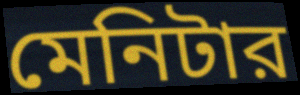
মেনিটার